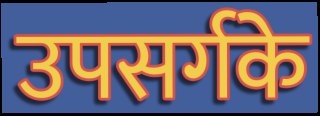
उपसर्गके